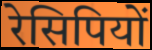
रेसिपियों